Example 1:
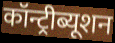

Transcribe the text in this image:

कॉन्ट्रीब्यूशन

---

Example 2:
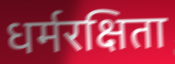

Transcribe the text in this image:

धर्मरक्षिता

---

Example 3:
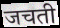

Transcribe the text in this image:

जचती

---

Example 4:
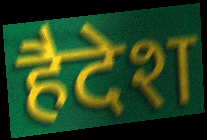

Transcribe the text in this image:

हैदेश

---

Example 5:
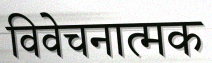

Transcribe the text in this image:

विवेचनात्मक